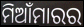
ମିଆଁମାରର